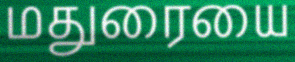
மதுரையை